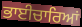
ਭਾਈਚਾਰਿਆਂ